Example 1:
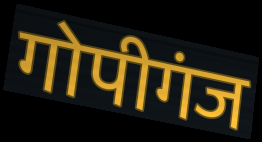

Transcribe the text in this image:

गोपीगंज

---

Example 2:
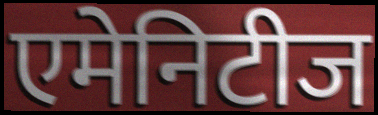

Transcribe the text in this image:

एमेनिटीज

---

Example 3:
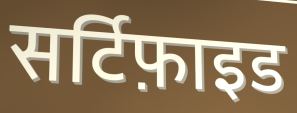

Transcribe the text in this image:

सर्टिफ़ाइड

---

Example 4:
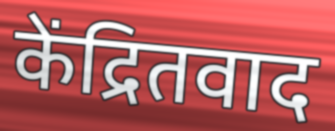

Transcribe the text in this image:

केंद्रितवाद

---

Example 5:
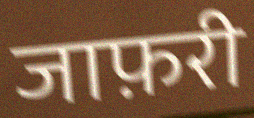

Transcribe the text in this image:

जाफ़री